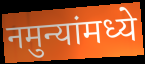
नमुन्यांमध्ये